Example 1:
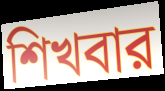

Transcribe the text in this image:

শিখবার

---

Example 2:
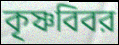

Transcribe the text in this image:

কৃষ্ণবিবর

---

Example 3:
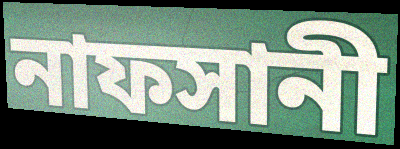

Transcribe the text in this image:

নাফসানী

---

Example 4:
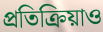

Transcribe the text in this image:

প্রতিক্রিয়াও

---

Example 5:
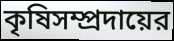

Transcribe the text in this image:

কৃষিসম্প্রদায়ের